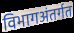
विभागअंतर्गत